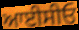
ਆਈਸੀਓ